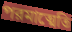
পরমাত্মেতি